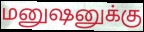
மனுஷனுக்கு